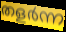
തളർന്ന